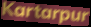
Kartarpur